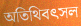
অতিথিবৎসল